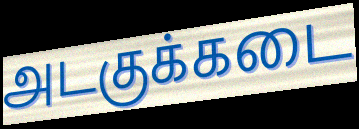
அடகுக்கடை